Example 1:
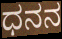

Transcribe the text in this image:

ಧನನ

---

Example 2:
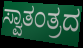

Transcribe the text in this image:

ಸ್ವಾತಂತ್ರದ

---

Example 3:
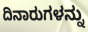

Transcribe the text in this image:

ದಿನಾರುಗಳನ್ನು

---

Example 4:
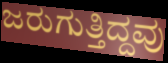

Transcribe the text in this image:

ಜರುಗುತ್ತಿದ್ದವು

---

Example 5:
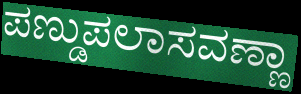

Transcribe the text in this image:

ಪಣ್ಡುಪಲಾಸವಣ್ಣಾ